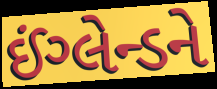
ઈંગ્લેન્ડને